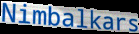
Nimbalkars